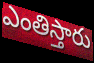
ఎంతిస్తారు